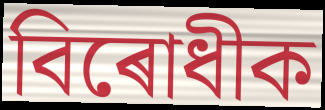
বিৰোধীক